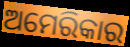
ଅମେରିକାର